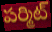
పర్మిట్